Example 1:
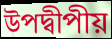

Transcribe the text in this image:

উপদ্বীপীয়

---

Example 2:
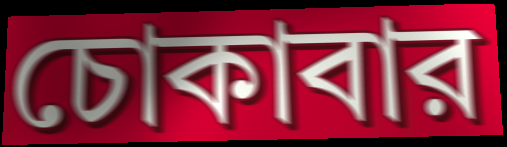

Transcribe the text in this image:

চোকাবার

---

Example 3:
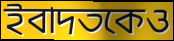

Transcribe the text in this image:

ইবাদতকেও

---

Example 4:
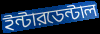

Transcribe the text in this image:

ইন্টারডেন্টাল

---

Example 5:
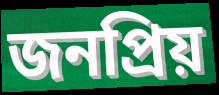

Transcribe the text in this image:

জনপ্রিয়